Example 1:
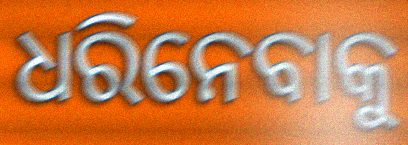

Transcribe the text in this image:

ଧରିନେବାକୁ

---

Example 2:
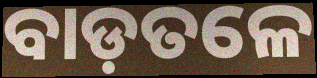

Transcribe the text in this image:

ବାଡ଼ତଳେ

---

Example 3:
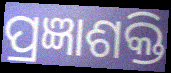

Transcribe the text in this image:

ପ୍ରଜ୍ଞାଶକ୍ତି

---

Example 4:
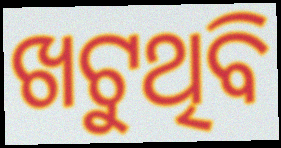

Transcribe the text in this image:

ଖଟୁଥିବି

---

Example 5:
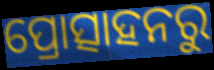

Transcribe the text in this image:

ପ୍ରୋତ୍ସାହନରୁ